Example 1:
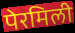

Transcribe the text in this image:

पेरमिली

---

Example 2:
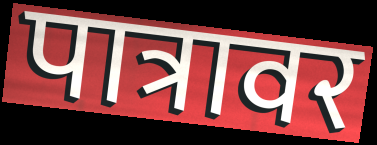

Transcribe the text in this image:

पात्रावर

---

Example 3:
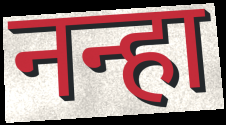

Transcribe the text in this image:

नन्हा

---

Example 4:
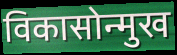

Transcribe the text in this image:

विकासोन्मुख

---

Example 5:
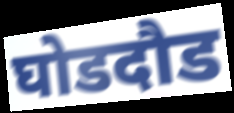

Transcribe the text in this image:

घोडदौड